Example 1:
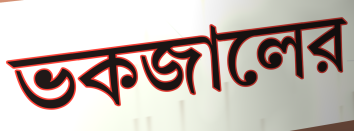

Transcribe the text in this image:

ভকজালের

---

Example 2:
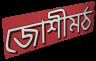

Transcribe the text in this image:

জোশীমঠ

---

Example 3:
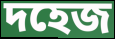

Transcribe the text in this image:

দহেজ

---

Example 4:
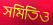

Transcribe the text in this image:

সমিতিও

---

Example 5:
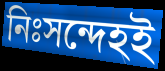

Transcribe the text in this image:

নিঃসন্দেহই